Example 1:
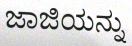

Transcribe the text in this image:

ಜಾಜಿಯನ್ನು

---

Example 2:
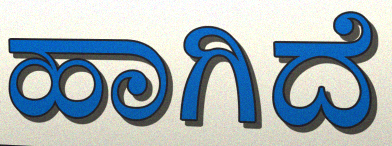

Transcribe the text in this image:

ಹಾಗಿದೆ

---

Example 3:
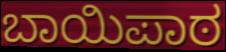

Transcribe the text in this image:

ಬಾಯಿಪಾಠ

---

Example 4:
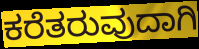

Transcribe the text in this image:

ಕರೆತರುವುದಾಗಿ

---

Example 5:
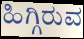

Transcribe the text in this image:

ಹಿಗ್ಗಿರುವ